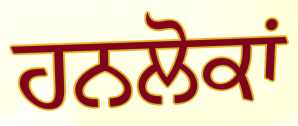
ਹਨਲੋਕਾਂ